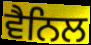
ਵੈਨਿਲ